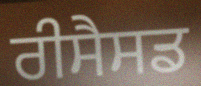
ਰੀਸੈਸਡ